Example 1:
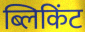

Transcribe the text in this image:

ब्लिकिंट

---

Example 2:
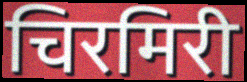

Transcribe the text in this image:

चिरमिरी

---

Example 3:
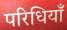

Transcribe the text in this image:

परिधियाँ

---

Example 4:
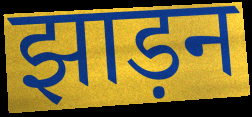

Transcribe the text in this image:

झाड़न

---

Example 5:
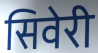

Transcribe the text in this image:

सिवेरी